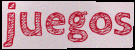
juegos